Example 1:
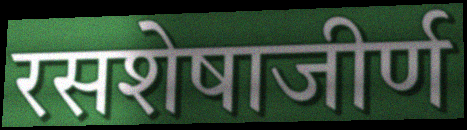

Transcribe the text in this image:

रसशेषाजीर्ण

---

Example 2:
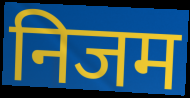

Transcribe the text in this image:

निजम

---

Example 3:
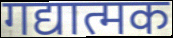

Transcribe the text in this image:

गद्यात्मक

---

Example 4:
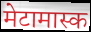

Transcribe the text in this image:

मेटामास्क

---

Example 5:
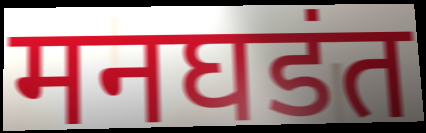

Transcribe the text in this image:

मनघडंत